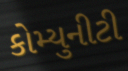
કોમ્યુનીટી